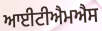
ਆਈਟੀਐਮਐਸ